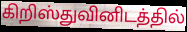
கிறிஸ்துவினிடத்தில்